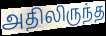
அதிலிருந்த